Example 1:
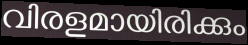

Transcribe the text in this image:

വിരളമായിരിക്കും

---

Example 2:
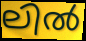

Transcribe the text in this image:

ലിൽ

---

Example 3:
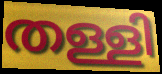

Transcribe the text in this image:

തള്ളി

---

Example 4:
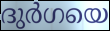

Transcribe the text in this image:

ദുർഗയെ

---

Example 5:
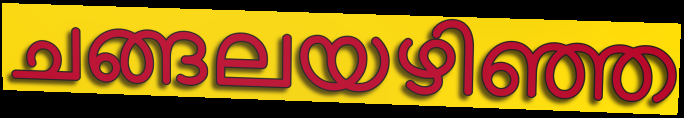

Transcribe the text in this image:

ചങ്ങലയഴിഞ്ഞ